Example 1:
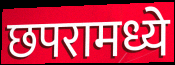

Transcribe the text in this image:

छपरामध्ये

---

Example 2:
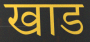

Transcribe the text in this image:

खाड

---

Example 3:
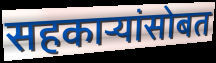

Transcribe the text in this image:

सहकाऱ्यांसोबत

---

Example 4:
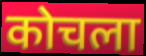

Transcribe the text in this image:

कोचला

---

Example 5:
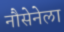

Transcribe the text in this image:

नौसेनेला